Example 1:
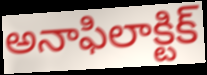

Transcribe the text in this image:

అనాఫిలాక్టిక్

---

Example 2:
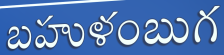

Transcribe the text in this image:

బహుళంబుగ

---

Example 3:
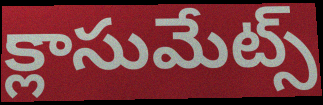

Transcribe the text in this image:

క్లాసుమేట్స్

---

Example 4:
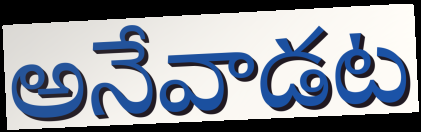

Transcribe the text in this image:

అనేవాడట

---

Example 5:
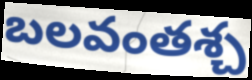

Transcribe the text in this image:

బలవంతశ్చ